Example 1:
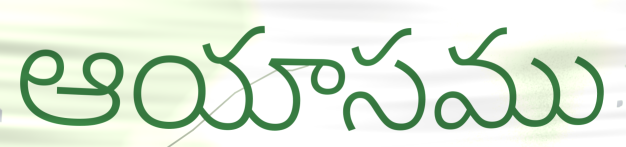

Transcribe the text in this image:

ఆయాసము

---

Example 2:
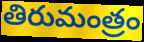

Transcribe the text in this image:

తిరుమంత్రం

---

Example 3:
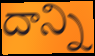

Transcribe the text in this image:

దాన్ని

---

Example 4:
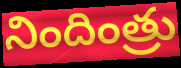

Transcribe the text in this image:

నిందింత్రు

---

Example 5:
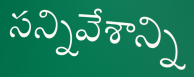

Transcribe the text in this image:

సన్నివేశాన్ని